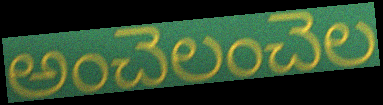
అంచెలంచెల